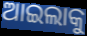
ଆଇଲାକୁ